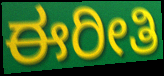
ಈರೀತಿ